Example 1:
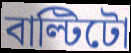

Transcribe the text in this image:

বাল্টিটো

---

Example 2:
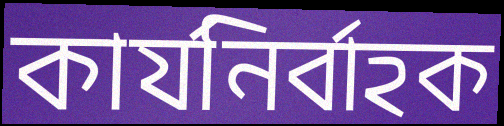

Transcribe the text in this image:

কাৰ্যনিৰ্বাহক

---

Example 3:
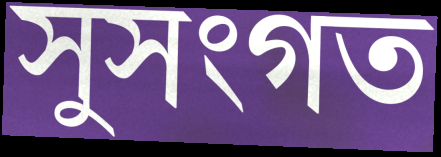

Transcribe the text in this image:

সুসংগত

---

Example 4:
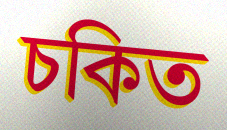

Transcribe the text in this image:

চকিত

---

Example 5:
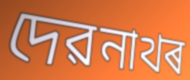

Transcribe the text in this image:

দেৱনাথৰ